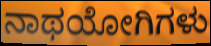
ನಾಥಯೋಗಿಗಳು